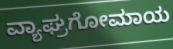
ವ್ಯಾಘ್ರಗೋಮಾಯ